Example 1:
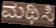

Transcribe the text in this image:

ಮಥಿಸಿ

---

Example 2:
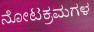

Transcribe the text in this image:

ನೋಟಕ್ರಮಗಳ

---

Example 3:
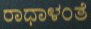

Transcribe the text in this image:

ರಾಧಾಳಂತೆ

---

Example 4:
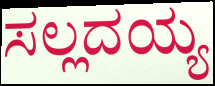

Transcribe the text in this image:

ಸಲ್ಲದಯ್ಯ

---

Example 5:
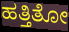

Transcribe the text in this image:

ಹತ್ತಿತೋ